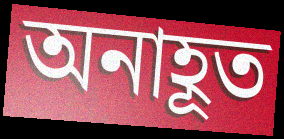
অনাহূত